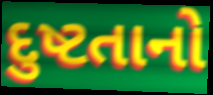
દુષ્ટતાનો